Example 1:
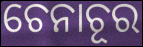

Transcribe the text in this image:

ଚେନାଚୂର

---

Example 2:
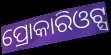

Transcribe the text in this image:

ପ୍ରୋକାରିଓଟ୍ସ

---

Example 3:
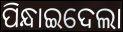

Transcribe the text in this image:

ପିନ୍ଧାଇଦେଲା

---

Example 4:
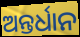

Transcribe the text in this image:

ଅନ୍ତର୍ଧାନ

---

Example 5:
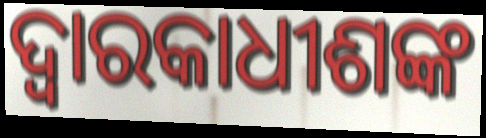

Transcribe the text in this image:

ଦ୍ୱାରକାଧୀଶଙ୍କ